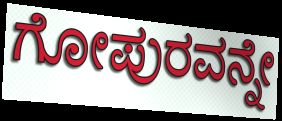
ಗೋಪುರವನ್ನೇ